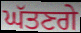
ਘੱਤਣਗੇ